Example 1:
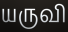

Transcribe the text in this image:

யருவி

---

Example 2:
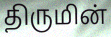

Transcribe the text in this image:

திருமின்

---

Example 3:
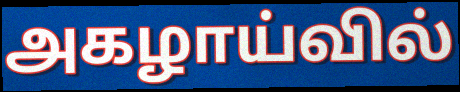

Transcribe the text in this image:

அகழாய்வில்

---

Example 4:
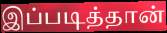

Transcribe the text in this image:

இப்படித்தான்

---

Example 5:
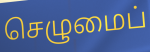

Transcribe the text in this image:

செழுமைப்